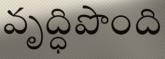
వృద్ధిపొంది